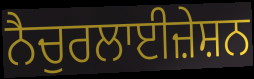
ਨੈਚੁਰਲਾਈਜ਼ੇਸ਼ਨ